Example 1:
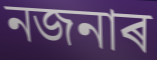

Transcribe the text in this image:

নজনাৰ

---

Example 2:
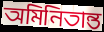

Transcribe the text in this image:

অমিনিতান্ত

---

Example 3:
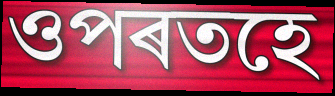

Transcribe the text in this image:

ওপৰতহে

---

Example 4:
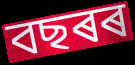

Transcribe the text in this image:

বছৰৰ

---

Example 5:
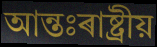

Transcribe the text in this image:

আন্তঃৰাষ্ট্ৰীয়